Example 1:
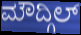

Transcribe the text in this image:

ಮೌದ್ಗಿಲ್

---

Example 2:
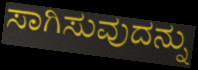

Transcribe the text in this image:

ಸಾಗಿಸುವುದನ್ನು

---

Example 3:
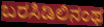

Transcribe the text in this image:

ಬರಸಿಡಿಲಿನಂಥ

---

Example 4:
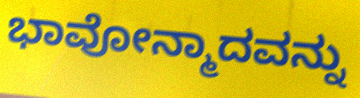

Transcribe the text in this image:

ಭಾವೋನ್ಮಾದವನ್ನು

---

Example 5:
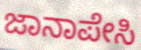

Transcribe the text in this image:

ಜಾನಾಪೇಸಿ